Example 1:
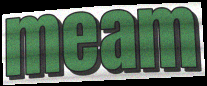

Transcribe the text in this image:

meam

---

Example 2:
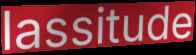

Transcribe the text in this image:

lassitude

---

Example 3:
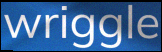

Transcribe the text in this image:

wriggle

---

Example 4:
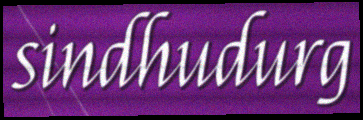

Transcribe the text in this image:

sindhudurg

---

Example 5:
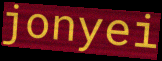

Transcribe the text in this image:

jonyei